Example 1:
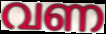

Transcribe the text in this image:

വണ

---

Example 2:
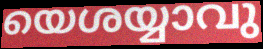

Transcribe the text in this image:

യെശയ്യാവു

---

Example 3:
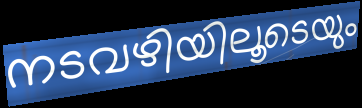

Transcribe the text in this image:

നടവഴിയിലൂടെയും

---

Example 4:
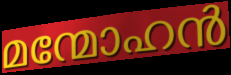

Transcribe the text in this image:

മന്മോഹൻ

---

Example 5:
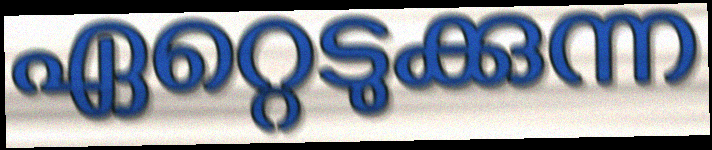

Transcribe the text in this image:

ഏറ്റെടുക്കുന്ന